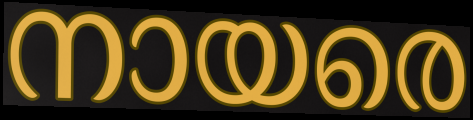
നായരെ